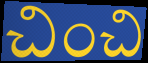
చించి